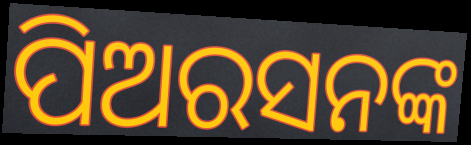
ପିଅରସନଙ୍କ